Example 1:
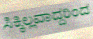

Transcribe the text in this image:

ಸಿಕ್ಕಿಲ್ಲವಾದ್ದರಿಂದ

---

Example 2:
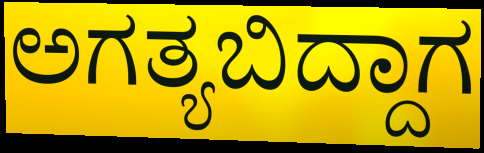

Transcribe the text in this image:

ಅಗತ್ಯಬಿದ್ದಾಗ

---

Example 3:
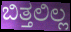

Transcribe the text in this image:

ಬಿತ್ತಲಿಲ್ಲ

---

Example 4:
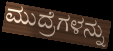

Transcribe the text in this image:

ಮುದ್ರೆಗಳನ್ನು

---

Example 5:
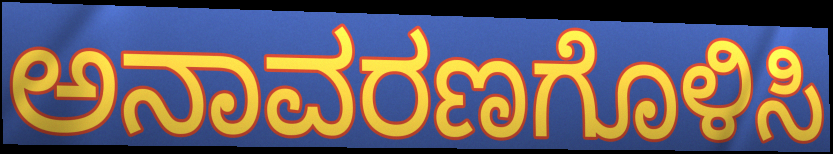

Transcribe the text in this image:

ಅನಾವರಣಗೊಳಿಸಿ